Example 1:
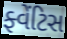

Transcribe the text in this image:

ફ્વેંટિસ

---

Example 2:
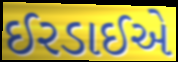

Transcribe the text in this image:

ઈરડાઈએ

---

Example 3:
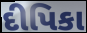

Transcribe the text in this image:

દીપિકા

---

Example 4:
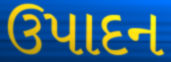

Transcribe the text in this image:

ઉપાદન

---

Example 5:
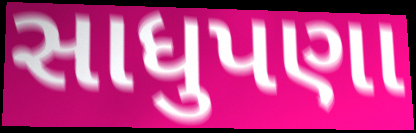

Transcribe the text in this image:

સાધુપણા